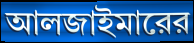
আলজাইমারের